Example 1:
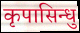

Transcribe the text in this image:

कृपासिन्धु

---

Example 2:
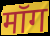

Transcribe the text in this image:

मॉग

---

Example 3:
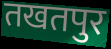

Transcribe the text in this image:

तखतपुर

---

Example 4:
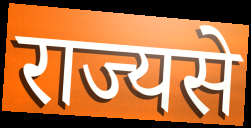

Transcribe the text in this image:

राज्यसे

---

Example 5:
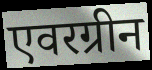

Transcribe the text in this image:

एवरग्रीन